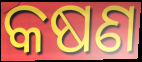
କଷଣ